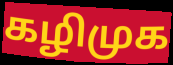
கழிமுக